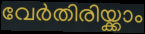
വേർതിരിയ്ക്കാം